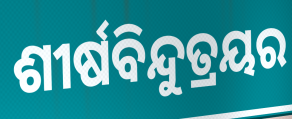
ଶୀର୍ଷବିନ୍ଦୁତ୍ରୟର